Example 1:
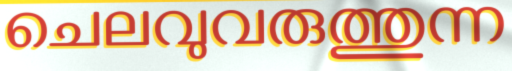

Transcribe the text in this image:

ചെലവുവരുത്തുന്ന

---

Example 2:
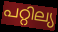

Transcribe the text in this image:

പറ്റില്യ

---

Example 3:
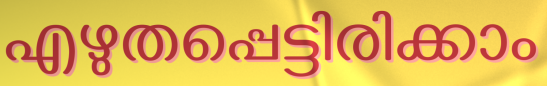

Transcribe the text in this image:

എഴുതപ്പെട്ടിരിക്കാം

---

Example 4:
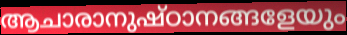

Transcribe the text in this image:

ആചാരാനുഷ്ഠാനങ്ങളേയും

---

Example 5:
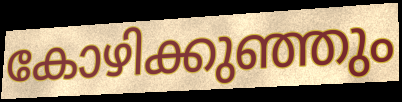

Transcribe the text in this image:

കോഴിക്കുഞ്ഞും